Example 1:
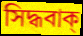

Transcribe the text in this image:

সিদ্ধবাক্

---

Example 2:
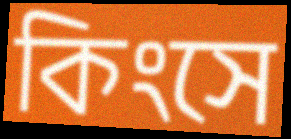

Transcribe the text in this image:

কিংসে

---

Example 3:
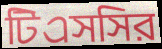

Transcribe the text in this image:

টিএসসির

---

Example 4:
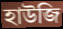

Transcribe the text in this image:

হাউজি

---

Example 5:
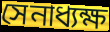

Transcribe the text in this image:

সেনাধ্যক্ষ